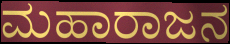
ಮಹಾರಾಜನ